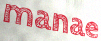
manae